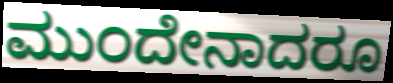
ಮುಂದೇನಾದರೂ